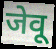
जेवू